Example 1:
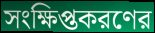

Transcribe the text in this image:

সংক্ষিপ্তকরণের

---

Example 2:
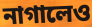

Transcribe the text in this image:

নাগালেও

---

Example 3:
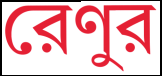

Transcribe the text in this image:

রেণুর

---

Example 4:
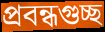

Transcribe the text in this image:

প্রবন্ধগুচ্ছ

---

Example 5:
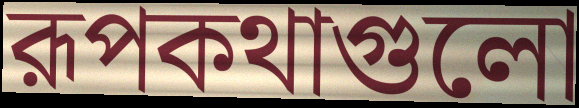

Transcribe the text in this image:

রূপকথাগুলো